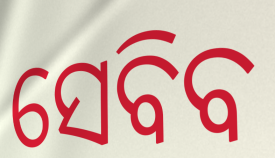
ସେବିବ